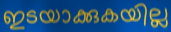
ഇടയാക്കുകയില്ല